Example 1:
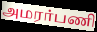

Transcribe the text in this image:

அமரர்பணி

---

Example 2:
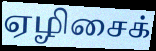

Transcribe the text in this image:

ஏழிசைக்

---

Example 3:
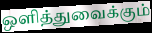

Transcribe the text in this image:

ஒளித்துவைக்கும்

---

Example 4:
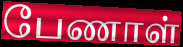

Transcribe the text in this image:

பேணாள்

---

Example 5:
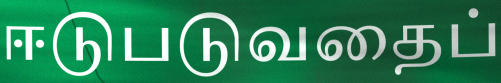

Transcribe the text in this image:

ஈடுபடுவதைப்